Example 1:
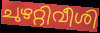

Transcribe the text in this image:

ചുഴറ്റിവീശി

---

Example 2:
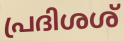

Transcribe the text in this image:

പ്രദിശശ്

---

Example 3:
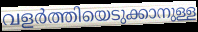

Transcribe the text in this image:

വളർത്തിയെടുക്കാനുള്ള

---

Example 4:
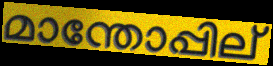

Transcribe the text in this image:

മാന്തോപ്പില്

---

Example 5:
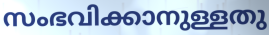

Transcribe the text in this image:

സംഭവിക്കാനുള്ളതു